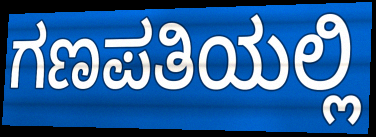
ಗಣಪತಿಯಲ್ಲಿ